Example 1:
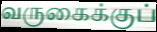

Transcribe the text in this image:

வருகைக்குப்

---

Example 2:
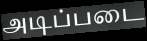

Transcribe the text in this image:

அடிப்படை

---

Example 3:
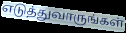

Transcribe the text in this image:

எடுத்துவாருங்கள்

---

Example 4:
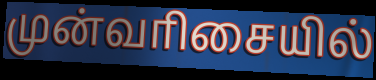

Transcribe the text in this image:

முன்வரிசையில்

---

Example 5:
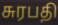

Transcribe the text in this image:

சுரபதி